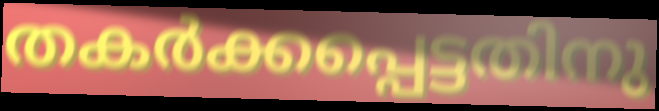
തകർക്കപ്പെട്ടതിനു